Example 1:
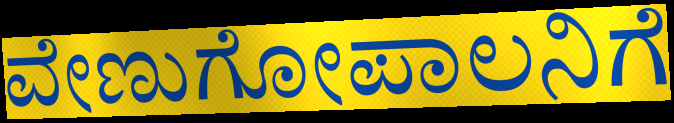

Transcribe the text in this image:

ವೇಣುಗೋಪಾಲನಿಗೆ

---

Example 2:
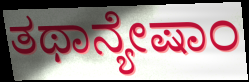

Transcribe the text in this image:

ತಥಾನ್ಯೇಷಾಂ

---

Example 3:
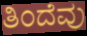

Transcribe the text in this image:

ತಿಂದೆವು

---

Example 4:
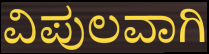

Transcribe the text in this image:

ವಿಪುಲವಾಗಿ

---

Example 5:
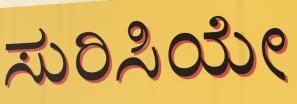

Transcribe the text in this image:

ಸುರಿಸಿಯೇ